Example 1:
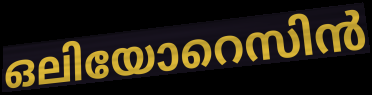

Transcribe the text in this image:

ഒലിയോറെസിൻ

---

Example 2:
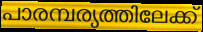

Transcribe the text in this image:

പാരമ്പര്യത്തിലേക്ക്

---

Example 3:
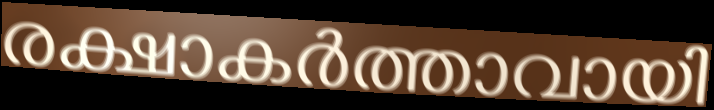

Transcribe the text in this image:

രക്ഷാകർത്താവായി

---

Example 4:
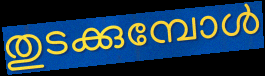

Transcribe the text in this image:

തുടക്കുമ്പോൾ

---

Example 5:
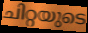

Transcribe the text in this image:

ചിറ്റയുടെ